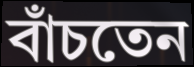
বাঁচতেন